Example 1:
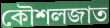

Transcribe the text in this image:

কৌশলজাত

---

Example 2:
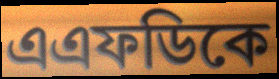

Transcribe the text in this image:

এএফডিকে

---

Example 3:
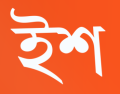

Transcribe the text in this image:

ইশ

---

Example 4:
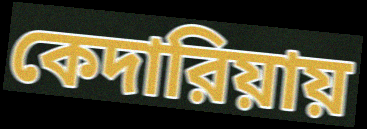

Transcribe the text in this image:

কেদারিয়ায়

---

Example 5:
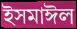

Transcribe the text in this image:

ইসমাঈল